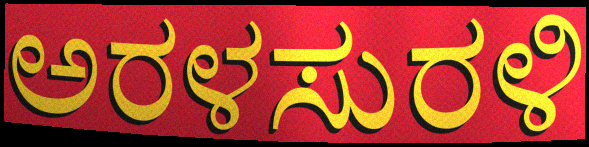
ಅರಳಸುರಳಿ